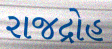
રાજદ્રોહ